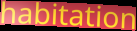
habitation